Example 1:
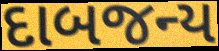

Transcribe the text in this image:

દાબજન્ય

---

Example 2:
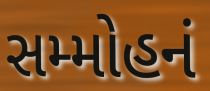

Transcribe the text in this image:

સમ્મોહનં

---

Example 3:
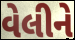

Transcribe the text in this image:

વેલીને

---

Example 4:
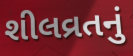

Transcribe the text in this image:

શીલવ્રતનું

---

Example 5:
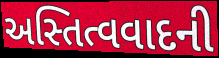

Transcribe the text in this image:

અસ્તિત્વવાદની